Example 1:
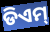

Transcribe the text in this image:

ଡିଏମ୍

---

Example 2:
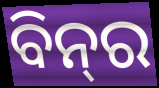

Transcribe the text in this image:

ବିନ୍‍ର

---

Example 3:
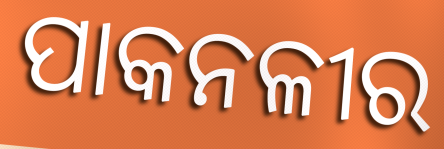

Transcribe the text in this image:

ପାକନଳୀର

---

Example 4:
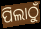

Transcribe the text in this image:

ପିଲାଠୁଁ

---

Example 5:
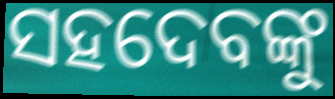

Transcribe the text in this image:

ସହଦେବଙ୍କୁ